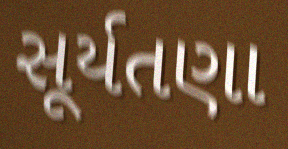
સૂર્યતણા